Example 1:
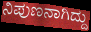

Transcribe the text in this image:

ನಿಪುಣನಾಗಿದ್ದು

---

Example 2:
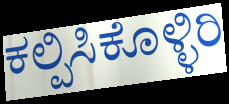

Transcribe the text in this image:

ಕಲ್ಪಿಸಿಕೊಳ್ಳಿರಿ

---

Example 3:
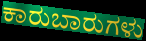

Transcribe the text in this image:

ಕಾರುಬಾರುಗಳು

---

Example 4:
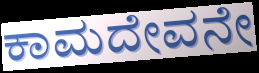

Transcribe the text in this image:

ಕಾಮದೇವನೇ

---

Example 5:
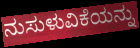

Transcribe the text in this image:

ನುಸುಳುವಿಕೆಯನ್ನು